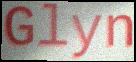
Glyn